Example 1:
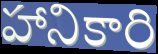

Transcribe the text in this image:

హానికారి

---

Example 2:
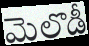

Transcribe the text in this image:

మెలొడీ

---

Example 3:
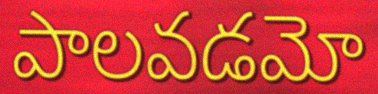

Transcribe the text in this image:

పాలవడమో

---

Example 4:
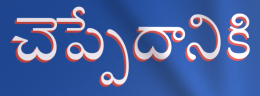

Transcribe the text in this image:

చెప్పేదానికి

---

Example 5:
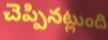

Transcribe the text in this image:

చెప్పినట్లుంది